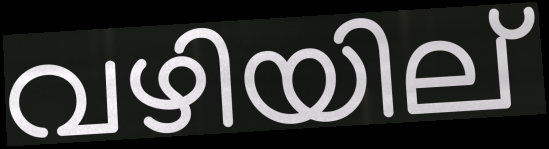
വഴിയില്